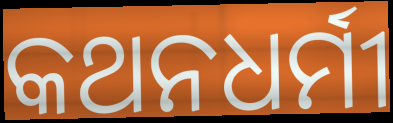
କଥନଧର୍ମୀ